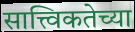
सात्त्विकतेच्या